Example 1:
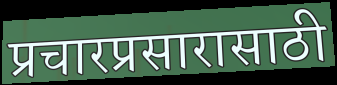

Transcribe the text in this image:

प्रचारप्रसारासाठी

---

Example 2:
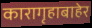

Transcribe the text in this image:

कारागृहाबाहेर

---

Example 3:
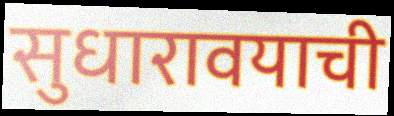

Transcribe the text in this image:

सुधारावयाची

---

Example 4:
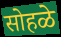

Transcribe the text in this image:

सोहळे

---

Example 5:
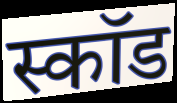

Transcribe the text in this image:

स्कॉड